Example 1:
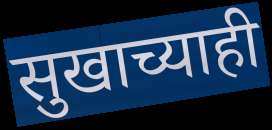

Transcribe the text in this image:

सुखाच्याही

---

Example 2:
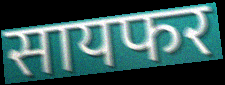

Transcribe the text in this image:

सायफर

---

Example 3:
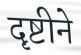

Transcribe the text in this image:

दृष्टीने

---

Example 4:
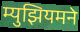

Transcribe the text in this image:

म्युझियमने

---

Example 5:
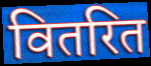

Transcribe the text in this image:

वितरित